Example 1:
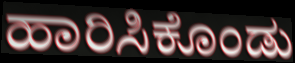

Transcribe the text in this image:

ಹಾರಿಸಿಕೊಂಡು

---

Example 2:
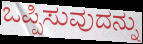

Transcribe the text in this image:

ಒಪ್ಪಿಸುವುದನ್ನು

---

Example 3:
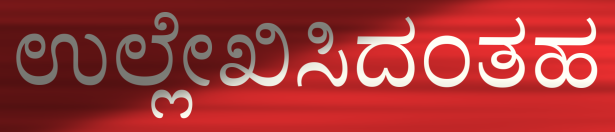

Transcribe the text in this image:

ಉಲ್ಲೇಖಿಸಿದಂತಹ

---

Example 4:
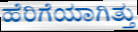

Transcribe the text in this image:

ಹೆರಿಗೆಯಾಗಿತ್ತು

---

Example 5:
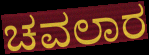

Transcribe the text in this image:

ಚವಲಾರ